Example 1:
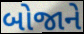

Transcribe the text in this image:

બોજાને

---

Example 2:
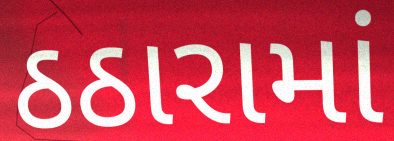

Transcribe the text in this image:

ઠઠારામાં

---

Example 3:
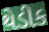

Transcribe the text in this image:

થેડીક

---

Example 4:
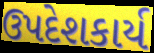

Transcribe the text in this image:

ઉપદેશકાર્ય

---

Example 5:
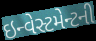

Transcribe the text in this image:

ઇન્વેસ્ટમેન્ટની